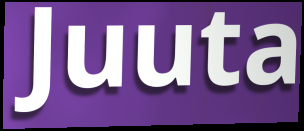
Juuta